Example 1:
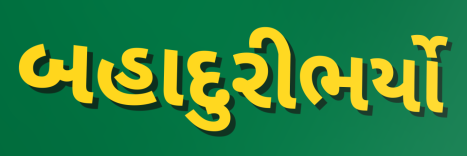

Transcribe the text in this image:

બહાદુરીભર્યો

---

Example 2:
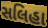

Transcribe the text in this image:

સલિહા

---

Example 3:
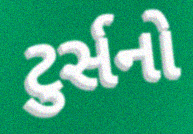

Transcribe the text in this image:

ટુર્સનો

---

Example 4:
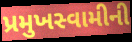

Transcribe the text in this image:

પ્રમુખસ્વામીની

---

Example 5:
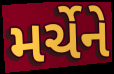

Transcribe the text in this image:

મર્ચેને